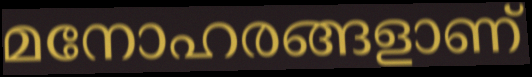
മനോഹരങ്ങളാണ്